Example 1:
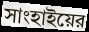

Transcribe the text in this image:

সাংহাইয়ের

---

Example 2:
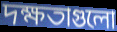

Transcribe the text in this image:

দক্ষতাগুলো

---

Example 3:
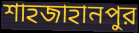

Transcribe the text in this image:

শাহজাহানপুর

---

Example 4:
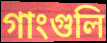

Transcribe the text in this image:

গাংগুলি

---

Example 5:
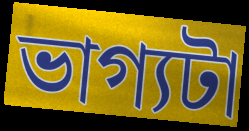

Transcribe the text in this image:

ভাগ্যটা